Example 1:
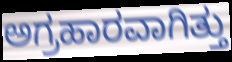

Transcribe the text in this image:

ಅಗ್ರಹಾರವಾಗಿತ್ತು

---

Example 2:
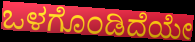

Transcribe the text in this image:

ಒಳಗೊಂಡಿದೆಯೇ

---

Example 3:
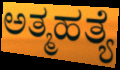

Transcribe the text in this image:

ಅತ್ಮಹತ್ಯೆ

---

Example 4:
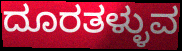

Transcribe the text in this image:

ದೂರತಳ್ಳುವ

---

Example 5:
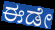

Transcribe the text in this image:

ಈಡೇ